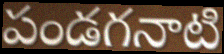
పండగనాటి